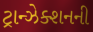
ટ્રાન્ઝેક્શનની